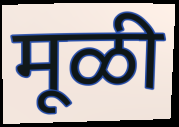
मूळी